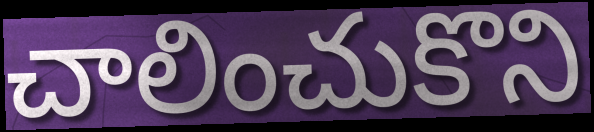
చాలించుకొని